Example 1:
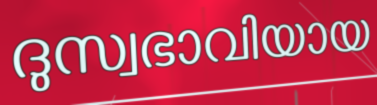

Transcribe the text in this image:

ദുസ്വഭാവിയായ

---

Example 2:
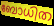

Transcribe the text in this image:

ബോധിത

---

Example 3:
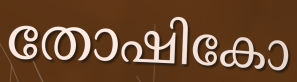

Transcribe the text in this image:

തോഷികോ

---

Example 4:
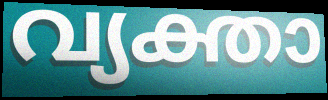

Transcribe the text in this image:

വ്യക്താ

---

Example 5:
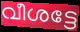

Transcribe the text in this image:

വീശട്ടേ